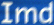
Imd